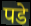
पडे